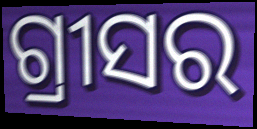
ଗ୍ରୀସର